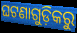
ଘଟଣାଗୁଡ଼ିକରୁ